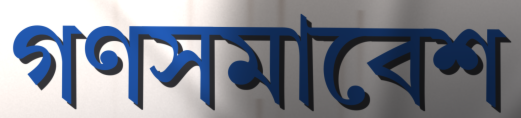
গণসমাবেশ